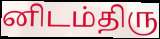
னிடம்திரு